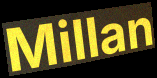
Millan